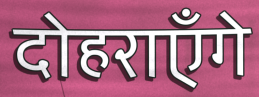
दोहराएँगे